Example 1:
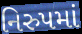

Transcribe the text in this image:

નિરુપમાં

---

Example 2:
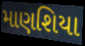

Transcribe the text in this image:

માણશિયા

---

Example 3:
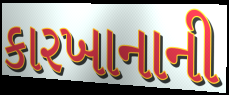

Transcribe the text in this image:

કારખાનાની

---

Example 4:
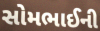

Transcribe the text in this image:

સોમભાઈની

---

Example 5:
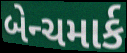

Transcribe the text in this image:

બેન્ચમાર્ક